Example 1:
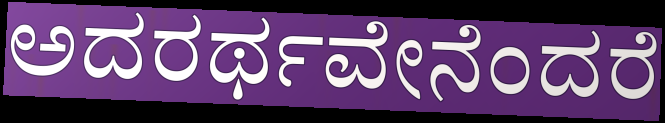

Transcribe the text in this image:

ಅದರರ್ಥವೇನೆಂದರೆ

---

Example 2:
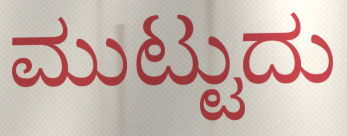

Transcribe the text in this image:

ಮುಟ್ಟುದು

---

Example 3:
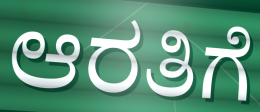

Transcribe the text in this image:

ಆರತಿಗೆ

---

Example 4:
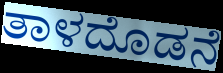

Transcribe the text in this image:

ತಾಳದೊಡನೆ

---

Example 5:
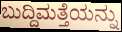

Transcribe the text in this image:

ಬುದ್ದಿಮತ್ತೆಯನ್ನು